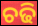
ଚଢି